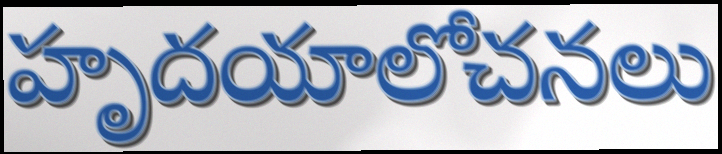
హృదయాలోచనలు